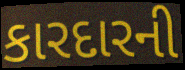
કારદારની